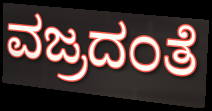
ವಜ್ರದಂತೆ